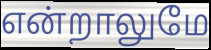
என்றாலுமே